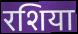
रशिया